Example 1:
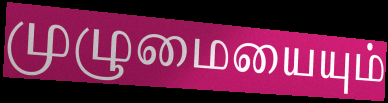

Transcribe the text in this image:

முழுமையையும்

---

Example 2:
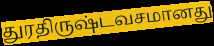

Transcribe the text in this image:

துரதிருஷ்டவசமானது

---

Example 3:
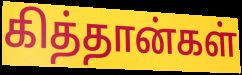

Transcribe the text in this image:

கித்தான்கள்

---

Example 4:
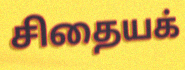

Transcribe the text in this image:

சிதையக்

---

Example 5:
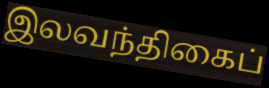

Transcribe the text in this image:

இலவந்திகைப்